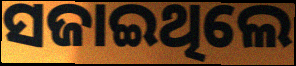
ସଜାଇଥିଲେ